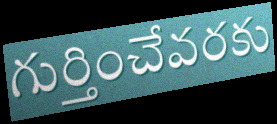
గుర్తించేవరకు